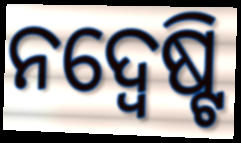
ନଦ୍ୱେଷ୍ଟି